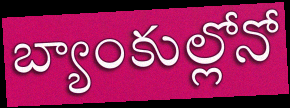
బ్యాంకుల్లోనో